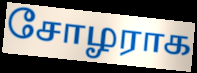
சோழராக